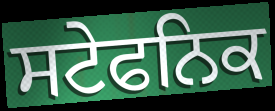
ਸਟੇਫਨਿਕ